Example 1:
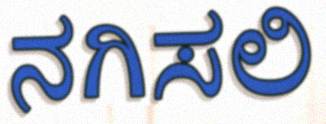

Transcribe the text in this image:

ನಗಿಸಲಿ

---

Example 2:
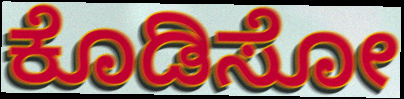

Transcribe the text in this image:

ಕೊಡಿಸೋ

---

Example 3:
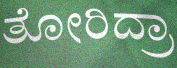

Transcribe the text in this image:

ತೋರಿದ್ರಾ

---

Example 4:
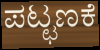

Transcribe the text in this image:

ಪಟ್ಟಣಕೆ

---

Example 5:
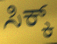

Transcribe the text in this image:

ಸಿಕ್ಕ್